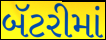
બૅટરીમાં